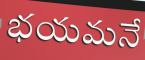
భయమనే